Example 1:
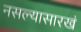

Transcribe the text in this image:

नसल्यासारखं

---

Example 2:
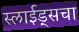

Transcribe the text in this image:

स्लाईड्सचा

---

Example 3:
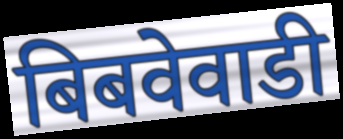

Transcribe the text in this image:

बिबवेवाडी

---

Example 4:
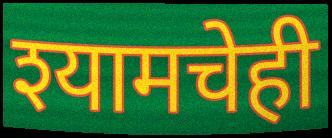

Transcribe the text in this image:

श्यामचेही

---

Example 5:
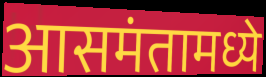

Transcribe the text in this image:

आसमंतामध्ये